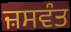
ਜ਼ਸਵੰਤ